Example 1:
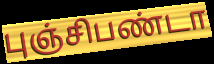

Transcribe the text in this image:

புஞ்சிபண்டா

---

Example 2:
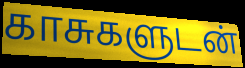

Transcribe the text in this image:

காசுகளுடன்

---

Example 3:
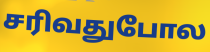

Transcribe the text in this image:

சரிவதுபோல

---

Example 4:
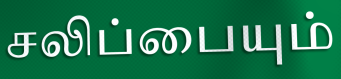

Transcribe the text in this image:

சலிப்பையும்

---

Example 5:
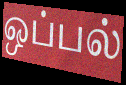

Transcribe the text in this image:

ஒப்பல்